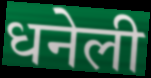
धनेली